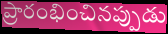
ప్రారంభించినప్పుడు